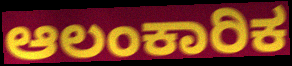
ಆಲಂಕಾರಿಕ